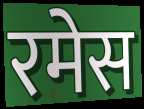
रमेस